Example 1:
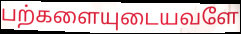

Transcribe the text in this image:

பற்களையுடையவளே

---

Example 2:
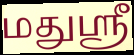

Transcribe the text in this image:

மதுஸ்ரீ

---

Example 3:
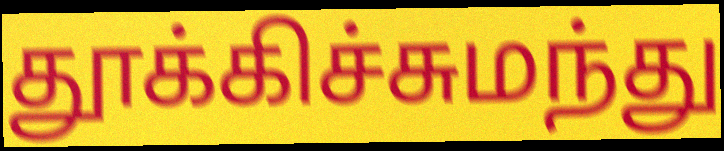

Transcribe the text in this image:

தூக்கிச்சுமந்து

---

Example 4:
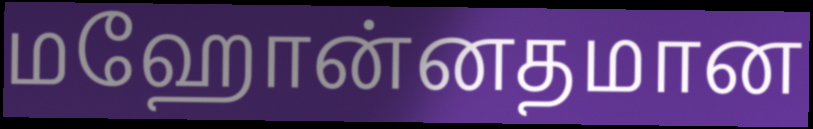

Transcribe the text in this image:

மஹோன்னதமான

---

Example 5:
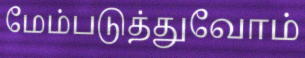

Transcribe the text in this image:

மேம்படுத்துவோம்